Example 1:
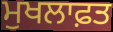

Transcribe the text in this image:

ਮੁਖਲਾਫ਼ਤ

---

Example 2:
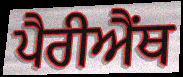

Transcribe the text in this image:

ਪੈਰੀਐਂਥ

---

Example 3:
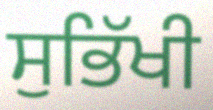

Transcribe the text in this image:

ਸੁਭਿੱਖੀ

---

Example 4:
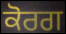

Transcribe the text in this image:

ਕੋਰਗ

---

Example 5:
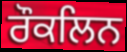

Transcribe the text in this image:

ਰੌਕਲਿਨ